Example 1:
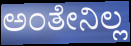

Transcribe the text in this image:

ಅಂತೇನಿಲ್ಲ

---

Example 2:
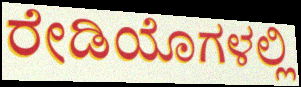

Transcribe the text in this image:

ರೇಡಿಯೊಗಳಲ್ಲಿ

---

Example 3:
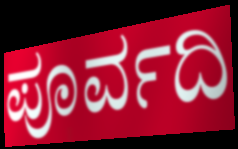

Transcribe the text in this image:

ಪೂರ್ವದಿ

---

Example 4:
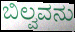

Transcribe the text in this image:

ಬಿಲ್ವವನು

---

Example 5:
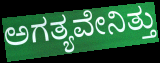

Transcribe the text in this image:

ಅಗತ್ಯವೇನಿತ್ತು